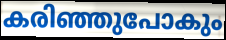
കരിഞ്ഞുപോകും